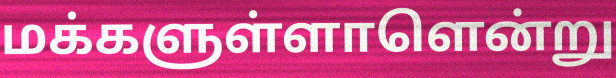
மக்களுள்ளாளென்று